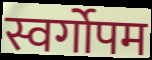
स्वर्गोपम